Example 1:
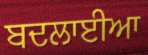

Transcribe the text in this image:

ਬਦਲਾਈਆ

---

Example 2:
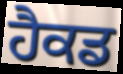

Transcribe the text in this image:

ਹੈਕਡ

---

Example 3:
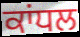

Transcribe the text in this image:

ਕਾਂਧਲ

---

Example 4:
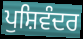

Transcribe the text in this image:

ਪੁਸ਼ਿਵੰਦਰ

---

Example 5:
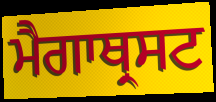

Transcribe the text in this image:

ਮੈਗਾਥ੍ਰਸਟ